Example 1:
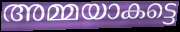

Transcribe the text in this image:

അമ്മയാകട്ടെ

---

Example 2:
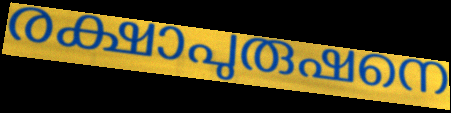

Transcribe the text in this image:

രക്ഷാപുരുഷനെ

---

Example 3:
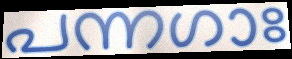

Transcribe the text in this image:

പന്നഗാഃ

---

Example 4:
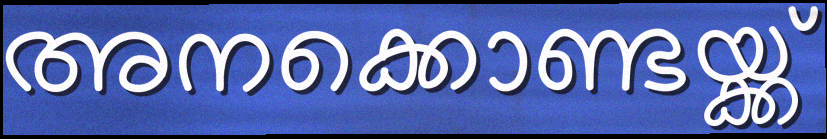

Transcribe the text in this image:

അനക്കൊണ്ടയ്ക്ക്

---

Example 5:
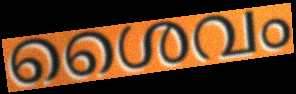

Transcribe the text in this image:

ശൈവം